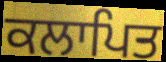
ਕਲਾਪਿਤ